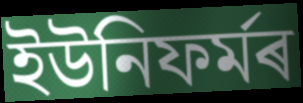
ইউনিফৰ্মৰ